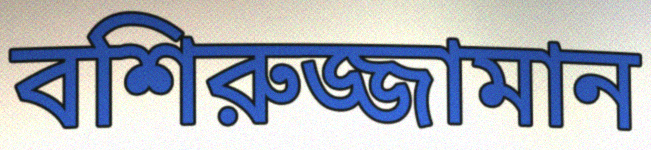
বশিরুজ্জামান